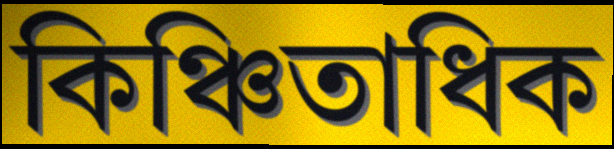
কিঞ্চিতাধিক